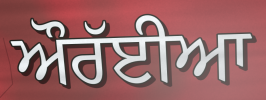
ਔਰੱਈਆ